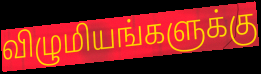
விழுமியங்களுக்கு